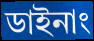
ডাইনাং